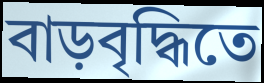
বাড়বৃদ্ধিতে